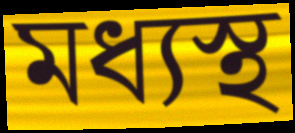
মধ্যস্থ